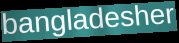
bangladesher